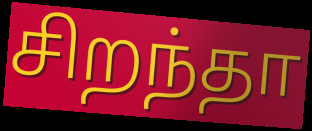
சிறந்தா